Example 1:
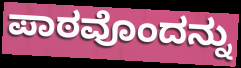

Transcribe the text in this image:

ಪಾಠವೊಂದನ್ನು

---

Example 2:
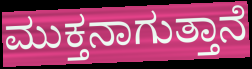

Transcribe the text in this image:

ಮುಕ್ತನಾಗುತ್ತಾನೆ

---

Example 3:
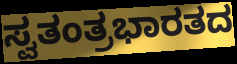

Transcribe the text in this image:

ಸ್ವತಂತ್ರಭಾರತದ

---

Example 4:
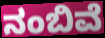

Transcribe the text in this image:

ನಂಬಿವೆ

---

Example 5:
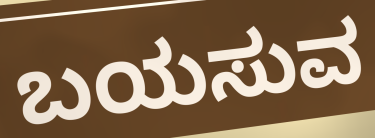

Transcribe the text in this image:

ಬಯಸುವ